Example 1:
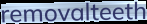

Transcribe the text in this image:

removalteeth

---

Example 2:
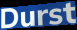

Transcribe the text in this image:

Durst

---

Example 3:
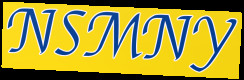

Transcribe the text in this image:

NSMNY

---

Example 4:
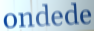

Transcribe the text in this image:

ondede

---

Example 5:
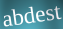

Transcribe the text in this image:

abdest